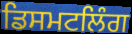
ਡਿਸਮਟਲਿੰਗ